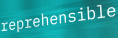
reprehensible